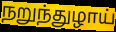
நறுந்துழாய்